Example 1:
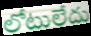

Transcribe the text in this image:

లోటులేదు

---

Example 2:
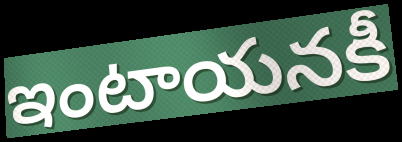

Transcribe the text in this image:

ఇంటాయనకీ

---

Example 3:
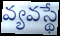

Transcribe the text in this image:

వ్యవస్థే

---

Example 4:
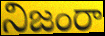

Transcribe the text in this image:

నిజంరా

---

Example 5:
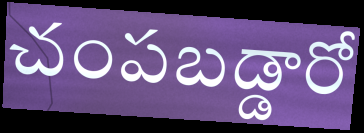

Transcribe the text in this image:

చంపబడ్డారో